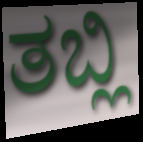
ತಬ್ಲಿ